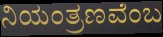
ನಿಯಂತ್ರಣವೆಂಬ